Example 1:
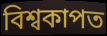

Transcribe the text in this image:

বিশ্বকাপত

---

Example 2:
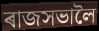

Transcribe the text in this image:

ৰাজসভালৈ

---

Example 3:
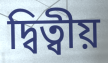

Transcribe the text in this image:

দ্বিত্বীয়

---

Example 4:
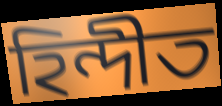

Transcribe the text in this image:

হিন্দীত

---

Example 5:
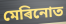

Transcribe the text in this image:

মেৰিনোত